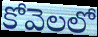
కోవెలలో